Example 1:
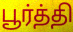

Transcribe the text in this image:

பூர்த்தி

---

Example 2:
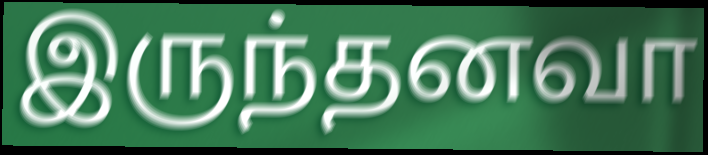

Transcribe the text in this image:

இருந்தனவா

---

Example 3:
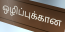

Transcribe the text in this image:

ஒழிப்புக்கான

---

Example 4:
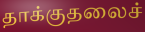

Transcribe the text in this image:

தாக்குதலைச்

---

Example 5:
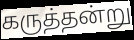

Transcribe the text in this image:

கருத்தன்று